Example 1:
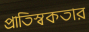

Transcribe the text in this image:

প্রাতিস্বকতার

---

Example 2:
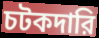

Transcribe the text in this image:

চটকদারি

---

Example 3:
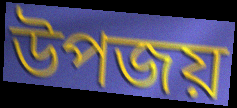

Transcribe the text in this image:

উপজয়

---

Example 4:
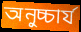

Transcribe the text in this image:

অনুচ্চার্য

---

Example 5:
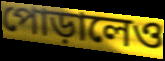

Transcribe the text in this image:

পোড়ালেও